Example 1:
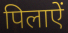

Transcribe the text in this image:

पिलाऐं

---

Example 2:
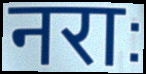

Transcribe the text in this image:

नराः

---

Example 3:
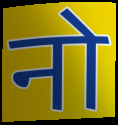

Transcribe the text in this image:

नो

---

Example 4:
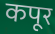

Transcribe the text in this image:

कपूर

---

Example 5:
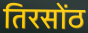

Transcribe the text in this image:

तिरसोंठ